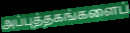
அப்புத்தகங்களைப்